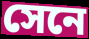
সেনে